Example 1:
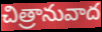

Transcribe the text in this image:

చిత్రానువాద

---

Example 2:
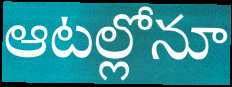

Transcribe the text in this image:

ఆటల్లోనూ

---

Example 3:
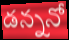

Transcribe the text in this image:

డన్ననో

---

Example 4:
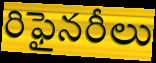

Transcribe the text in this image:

రిఫైనరీలు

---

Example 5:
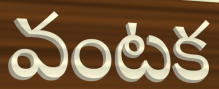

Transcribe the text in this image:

వంటక